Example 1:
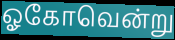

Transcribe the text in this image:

ஓகோவென்று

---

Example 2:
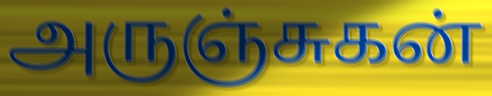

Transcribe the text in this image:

அருஞ்சுகன்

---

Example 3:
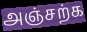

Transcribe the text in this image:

அஞ்சற்க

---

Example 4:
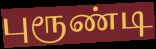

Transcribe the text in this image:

புரூண்டி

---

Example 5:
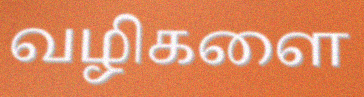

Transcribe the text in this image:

வழிகளை